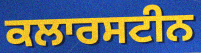
ਕਲਾਰਸਟੀਨ